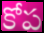
కోప